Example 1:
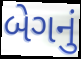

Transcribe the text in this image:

બેગનું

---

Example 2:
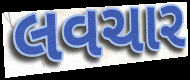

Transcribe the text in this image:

લવચાર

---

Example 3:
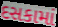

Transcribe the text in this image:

દસકામાં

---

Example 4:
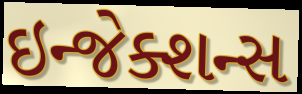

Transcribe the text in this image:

ઇન્જેક્શન્સ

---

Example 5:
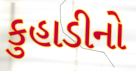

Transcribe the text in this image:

કુહાડીનો